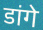
डांगे